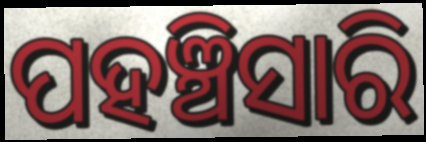
ପହଞ୍ଚିସାରି